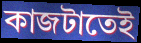
কাজটাতেই